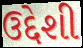
ઉદ્દેશી